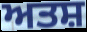
ਅਤਸ਼